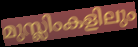
മുസ്ലിംകളിലും